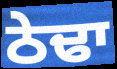
ਠੇਢਾ